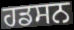
ਹਡਸਨ